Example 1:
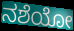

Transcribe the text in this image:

ನಶೆಯೋ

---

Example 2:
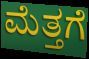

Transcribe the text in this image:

ಮೆತ್ತಗೆ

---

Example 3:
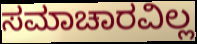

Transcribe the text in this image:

ಸಮಾಚಾರವಿಲ್ಲ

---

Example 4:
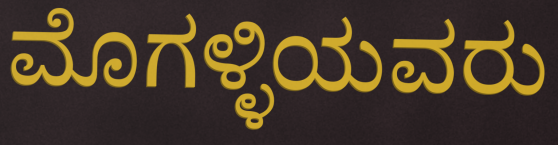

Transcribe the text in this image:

ಮೊಗಳ್ಳಿಯವರು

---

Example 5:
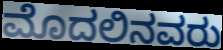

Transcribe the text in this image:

ಮೊದಲಿನವರು